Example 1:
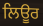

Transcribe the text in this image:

ਲਿਊਰ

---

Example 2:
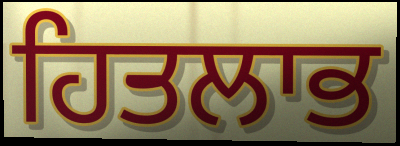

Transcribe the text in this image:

ਹਿਤਲਾਭ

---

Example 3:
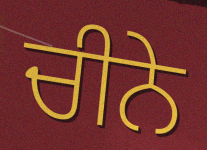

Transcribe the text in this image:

ਚੀਨੇ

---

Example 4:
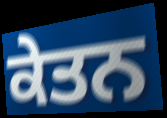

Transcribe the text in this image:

ਕੇਤਨ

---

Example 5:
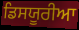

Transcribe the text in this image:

ਡਿਸਯੂਰੀਆ